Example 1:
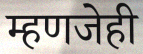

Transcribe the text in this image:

म्हणजेही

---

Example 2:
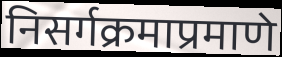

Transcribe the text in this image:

निसर्गक्रमाप्रमाणे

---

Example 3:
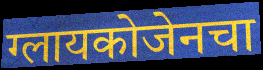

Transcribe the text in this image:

ग्लायकोजेनचा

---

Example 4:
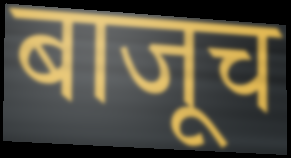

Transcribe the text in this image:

बाजूच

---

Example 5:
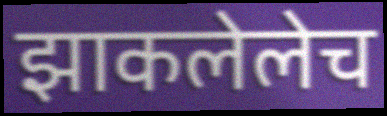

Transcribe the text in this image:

झाकलेलेच